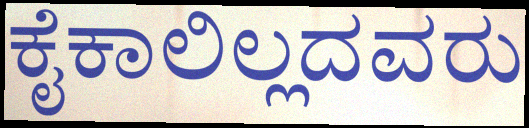
ಕೈಕಾಲಿಲ್ಲದವರು